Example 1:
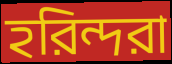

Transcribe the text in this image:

হরিন্দরা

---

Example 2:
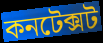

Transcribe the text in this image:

কনটেক্সট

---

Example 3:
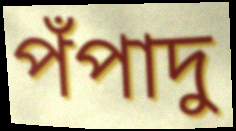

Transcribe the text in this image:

পঁপাদু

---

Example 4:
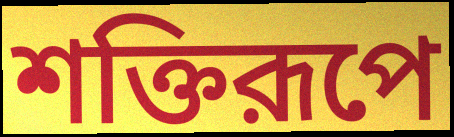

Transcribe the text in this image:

শক্তিরূপে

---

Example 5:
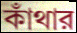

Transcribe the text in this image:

কাঁথার